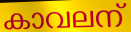
കാവലന്